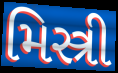
મિસ્ત્રી